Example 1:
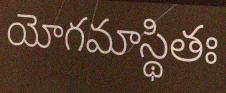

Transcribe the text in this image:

యోగమాస్థితః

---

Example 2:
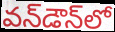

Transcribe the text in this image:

వన్‌డౌన్‌లో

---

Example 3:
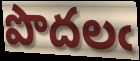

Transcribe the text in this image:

పొదలఁ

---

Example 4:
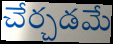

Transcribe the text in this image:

చేర్చడమే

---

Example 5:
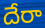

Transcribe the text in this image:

దేరా